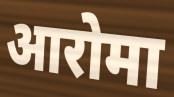
आरोमा